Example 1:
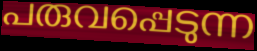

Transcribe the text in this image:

പരുവപ്പെടുന്ന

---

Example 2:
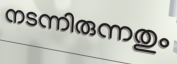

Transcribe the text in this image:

നടന്നിരുന്നതും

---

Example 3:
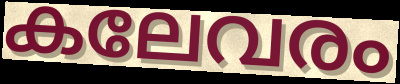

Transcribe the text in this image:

കലേവരം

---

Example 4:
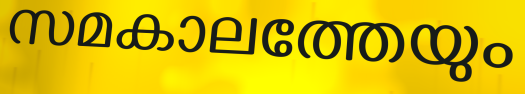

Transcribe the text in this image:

സമകാലത്തേയും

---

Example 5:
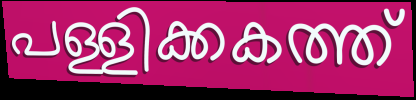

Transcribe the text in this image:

പള്ളിക്കകത്ത്